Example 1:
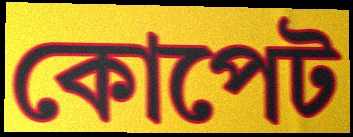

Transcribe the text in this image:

কোপেট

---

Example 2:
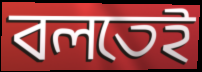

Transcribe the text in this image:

বলতেই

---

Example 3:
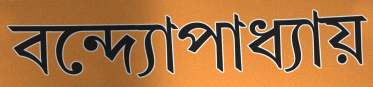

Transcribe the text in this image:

বন্দ্যোপাধ্যায়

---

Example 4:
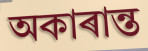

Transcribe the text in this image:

অকাৰান্ত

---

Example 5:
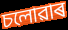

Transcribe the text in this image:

চলোৱাৰ